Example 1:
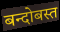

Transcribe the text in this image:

बन्दोबस्त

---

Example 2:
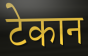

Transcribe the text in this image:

टेकान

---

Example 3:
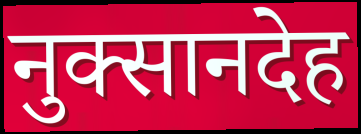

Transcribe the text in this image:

नुक्सानदेह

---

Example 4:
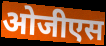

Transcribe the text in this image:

ओजीएस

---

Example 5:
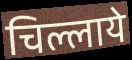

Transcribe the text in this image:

चिल्लाये